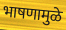
भाषणामुळे